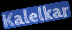
Kalelkar